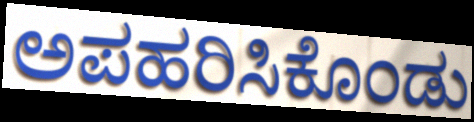
ಅಪಹರಿಸಿಕೊಂಡು